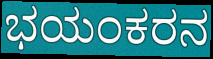
ಭಯಂಕರನ